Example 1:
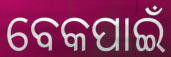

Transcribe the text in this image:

ବେକପାଇଁ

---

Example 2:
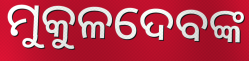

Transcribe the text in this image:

ମୁକୁଳଦେବଙ୍କ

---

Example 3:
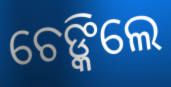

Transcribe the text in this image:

ଚେଙ୍କିଲେ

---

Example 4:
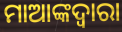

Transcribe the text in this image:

ମାଆଙ୍କଦ୍ଵାରା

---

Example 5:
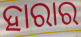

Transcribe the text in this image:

ହାରାର